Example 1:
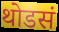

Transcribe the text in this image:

थोडसं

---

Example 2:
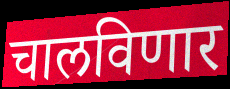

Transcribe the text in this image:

चालविणार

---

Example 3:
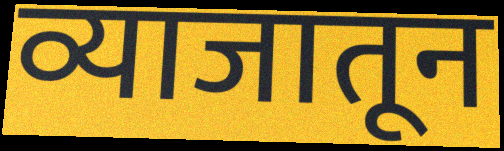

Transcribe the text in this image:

व्याजातून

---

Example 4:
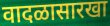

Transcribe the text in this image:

वादळासारखा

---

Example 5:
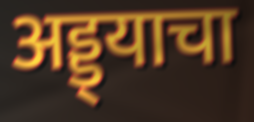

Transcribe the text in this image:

अड्ड्याचा